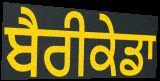
ਬੈਰੀਕੇਡਾ